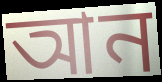
আন